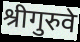
श्रीगुरुवे